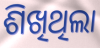
ଶିଖିଥିଲା